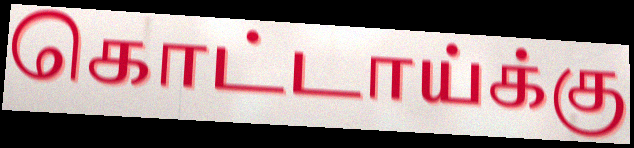
கொட்டாய்க்கு